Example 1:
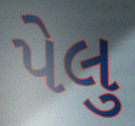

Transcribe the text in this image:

પેલુ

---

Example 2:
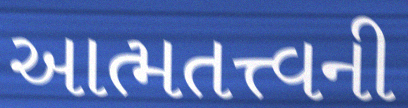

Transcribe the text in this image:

આત્મતત્ત્વની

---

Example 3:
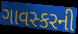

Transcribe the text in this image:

ગાવસ્કરની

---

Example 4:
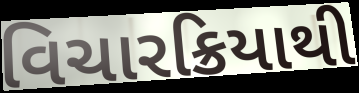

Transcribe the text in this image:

વિચારક્રિયાથી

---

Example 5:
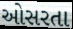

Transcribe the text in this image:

ઓસરતા